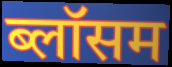
ब्लॉसम